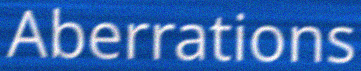
Aberrations